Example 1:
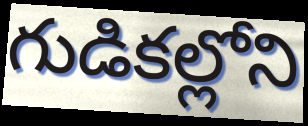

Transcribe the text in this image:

గుడికల్లోని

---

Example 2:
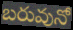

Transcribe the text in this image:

బరువునో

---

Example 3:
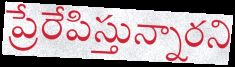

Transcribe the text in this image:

ప్రేరేపిస్తున్నారని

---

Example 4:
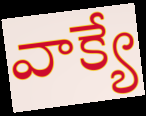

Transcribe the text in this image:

వాక్యే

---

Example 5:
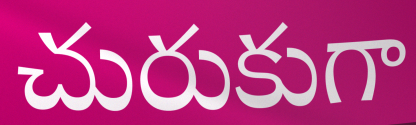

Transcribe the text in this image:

చురుకుగా